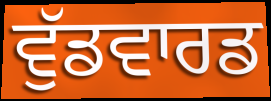
ਵੁੱਡਵਾਰਡ